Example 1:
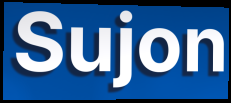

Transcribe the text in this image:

Sujon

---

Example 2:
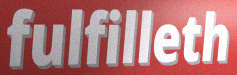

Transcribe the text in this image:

fulfilleth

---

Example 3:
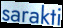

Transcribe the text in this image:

sarakti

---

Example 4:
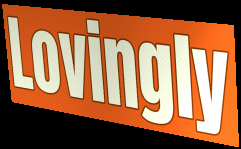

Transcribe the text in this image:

Lovingly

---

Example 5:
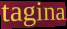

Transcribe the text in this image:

tagina